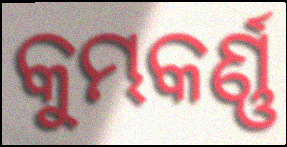
କୁମ୍ଭକର୍ଣ୍ଣ